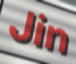
Jin